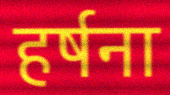
हर्षना